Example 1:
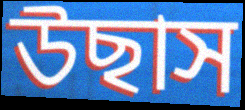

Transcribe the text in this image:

উছাস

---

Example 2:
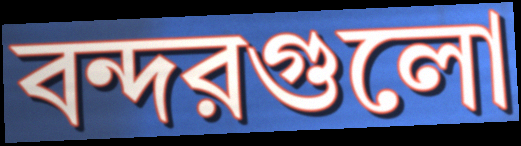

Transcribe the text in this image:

বন্দরগুলো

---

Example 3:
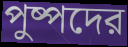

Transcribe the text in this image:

পুষ্পদের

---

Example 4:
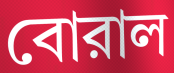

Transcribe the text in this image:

বোরাল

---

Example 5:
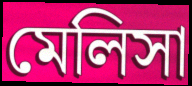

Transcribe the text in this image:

মেলিসা